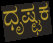
ಧೃಷ್ಟಕ